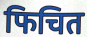
फिचित